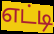
எட்டி